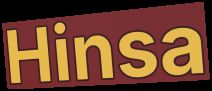
Hinsa